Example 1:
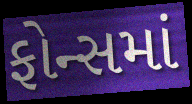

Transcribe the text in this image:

ફોન્સમાં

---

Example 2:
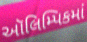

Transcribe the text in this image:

ઑલિમ્પિકમાં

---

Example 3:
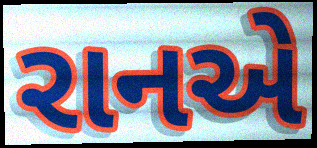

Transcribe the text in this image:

રાનએ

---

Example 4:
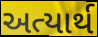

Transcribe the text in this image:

અત્યાર્થ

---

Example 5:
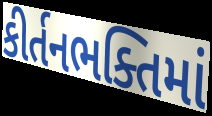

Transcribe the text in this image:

કીર્તનભક્તિમાં